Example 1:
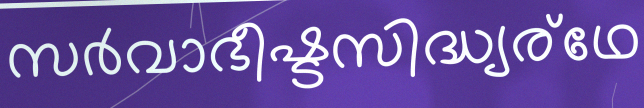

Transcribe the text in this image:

സർവാഭീഷ്ടസിദ്ധ്യര്ഥേ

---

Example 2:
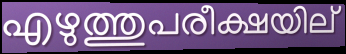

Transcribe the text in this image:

എഴുത്തുപരീക്ഷയില്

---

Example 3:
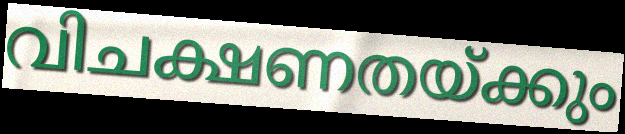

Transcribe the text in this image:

വിചക്ഷണതയ്ക്കും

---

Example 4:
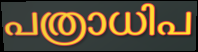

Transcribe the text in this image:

പത്രാധിപ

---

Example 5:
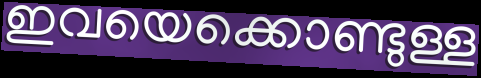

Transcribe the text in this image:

ഇവയെക്കൊണ്ടുള്ള